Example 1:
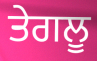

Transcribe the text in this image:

ਤੇਗਲੂ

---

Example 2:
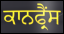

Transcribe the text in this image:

ਕਾਨਫ੍ਰੈਂਸ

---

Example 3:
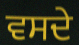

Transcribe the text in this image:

ਵਸਦੇ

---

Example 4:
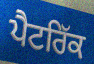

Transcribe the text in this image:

ਪੈਟਰਿੱਕ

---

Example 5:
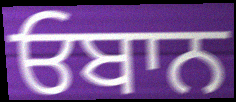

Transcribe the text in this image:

ਓਬਾਨ